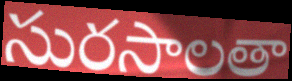
సురసాలతా